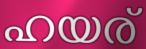
ഹയര്